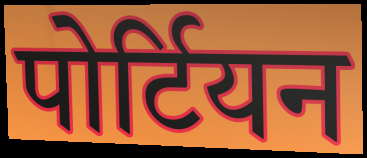
पोर्टियन